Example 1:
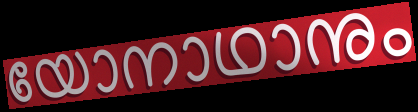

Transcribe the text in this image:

യോനാഥാനും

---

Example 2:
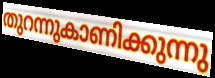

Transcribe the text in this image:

തുറന്നുകാണിക്കുന്നു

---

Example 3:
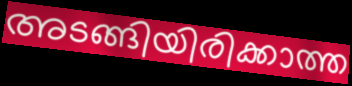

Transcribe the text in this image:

അടങ്ങിയിരിക്കാത്ത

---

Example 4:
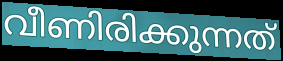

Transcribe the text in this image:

വീണിരിക്കുന്നത്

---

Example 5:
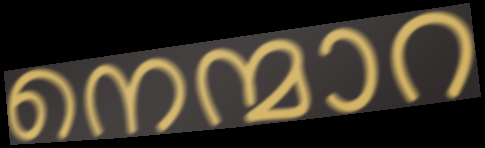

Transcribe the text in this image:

നെന്മാറ